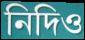
নিদিও